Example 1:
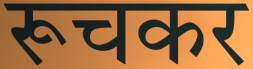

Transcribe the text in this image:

रूचकर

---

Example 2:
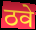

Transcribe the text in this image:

ठवे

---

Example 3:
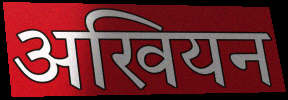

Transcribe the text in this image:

अखियन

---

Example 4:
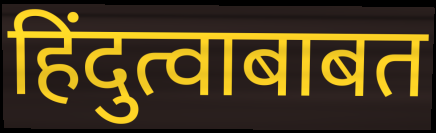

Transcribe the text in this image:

हिंदुत्वाबाबत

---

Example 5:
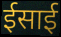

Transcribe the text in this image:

ईसाई